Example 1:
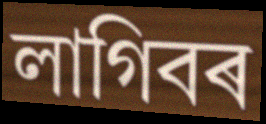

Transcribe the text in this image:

লাগিবৰ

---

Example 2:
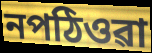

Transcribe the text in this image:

নপঠিওৱা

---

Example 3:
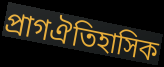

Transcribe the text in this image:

প্ৰাগঐতিহাসিক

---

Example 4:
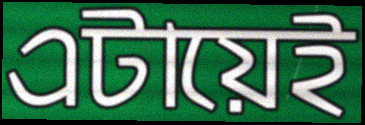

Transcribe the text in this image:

এটায়েই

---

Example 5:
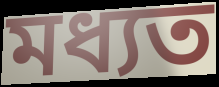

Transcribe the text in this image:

মধ্যত